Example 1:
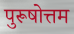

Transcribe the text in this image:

पुरूषोत्तम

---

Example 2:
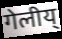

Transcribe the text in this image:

गेलीय्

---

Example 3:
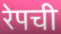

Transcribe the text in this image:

रेपची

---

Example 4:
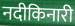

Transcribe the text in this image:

नदीकिनारी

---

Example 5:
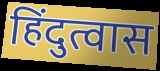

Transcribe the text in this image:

हिंदुत्वास